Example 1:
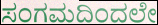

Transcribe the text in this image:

ಸಂಗಮದಿಂದಲೇ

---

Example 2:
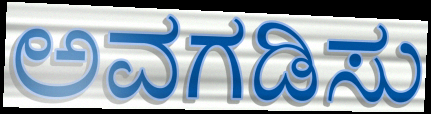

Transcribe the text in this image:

ಅವಗಡಿಸು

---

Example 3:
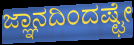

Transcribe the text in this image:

ಜ್ಞಾನದಿಂದಷ್ಟೇ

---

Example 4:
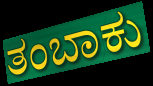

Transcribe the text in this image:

ತಂಬಾಕು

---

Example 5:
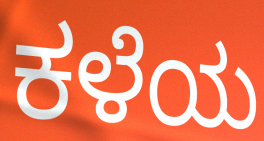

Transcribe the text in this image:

ಕಳೆಯ